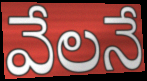
వేలనే